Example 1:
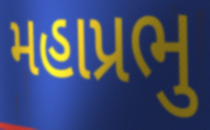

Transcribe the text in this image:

મહાપ્રભુ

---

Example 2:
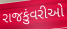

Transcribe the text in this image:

રાજકુંવરીઓ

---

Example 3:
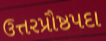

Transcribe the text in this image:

ઉત્તરપ્રૌષ્ઠપદા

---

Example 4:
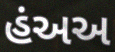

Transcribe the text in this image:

હંઅઅ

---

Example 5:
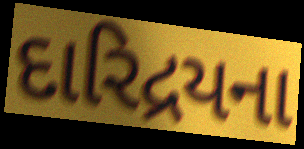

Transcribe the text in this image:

દારિદ્રયના